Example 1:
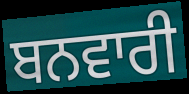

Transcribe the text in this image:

ਬਨਵਾਰੀ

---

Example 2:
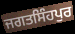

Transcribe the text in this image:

ਜਗਤਸਿੰਹਪੁਰ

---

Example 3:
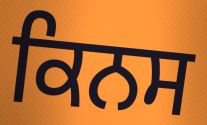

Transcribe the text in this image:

ਕਿਨਸ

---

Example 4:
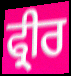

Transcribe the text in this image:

ਫ੍ਰੀਰ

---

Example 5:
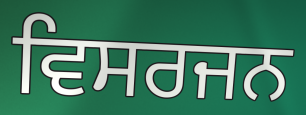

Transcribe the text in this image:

ਵਿਸਰਜਨ